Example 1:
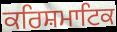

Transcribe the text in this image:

ਕਰਿਸ਼ਮਾਟਿਕ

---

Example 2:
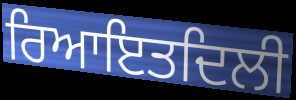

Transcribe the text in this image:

ਰਿਆਇਤਦਿਲੀ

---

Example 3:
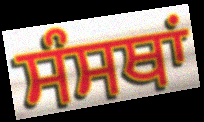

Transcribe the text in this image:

ਸੰਸਥਾਂ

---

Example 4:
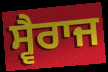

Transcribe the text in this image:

ਸ੍ਵੈਰਾਜ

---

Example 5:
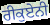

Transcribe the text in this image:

ਰੀਕੁਏਨੀ